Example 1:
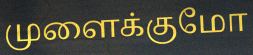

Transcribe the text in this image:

முளைக்குமோ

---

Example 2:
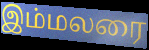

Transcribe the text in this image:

இம்மலரை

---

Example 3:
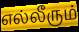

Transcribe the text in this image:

எல்லீரும்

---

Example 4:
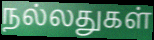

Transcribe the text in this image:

நல்லதுகள்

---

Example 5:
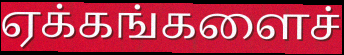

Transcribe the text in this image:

ஏக்கங்களைச்